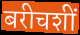
बरीचशीं